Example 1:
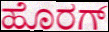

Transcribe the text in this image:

ಹೊರಗ್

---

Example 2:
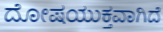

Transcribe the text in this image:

ದೋಷಯುಕ್ತವಾಗಿದೆ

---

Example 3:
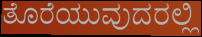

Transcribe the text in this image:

ತೊರೆಯುವುದರಲ್ಲಿ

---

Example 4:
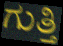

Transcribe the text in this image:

ಗುತ್ತಿ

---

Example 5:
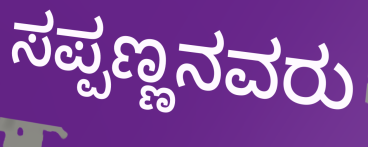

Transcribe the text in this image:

ಸಪ್ಪಣ್ಣನವರು